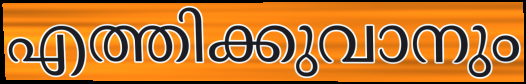
എത്തിക്കുവാനും